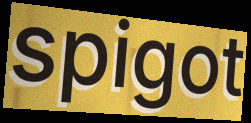
spigot